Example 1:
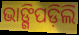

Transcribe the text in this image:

ଭାଙ୍ଗିପଡ଼ିଲି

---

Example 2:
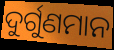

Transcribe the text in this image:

ଦୁର୍ଗୁଣମାନ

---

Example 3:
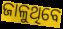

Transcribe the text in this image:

ଜାଳୁଥିବେ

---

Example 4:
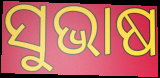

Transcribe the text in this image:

ସୁଭାଷ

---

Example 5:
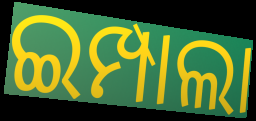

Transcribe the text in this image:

ଇମ୍ପାଲା